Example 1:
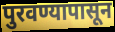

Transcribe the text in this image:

पुरवण्यापासून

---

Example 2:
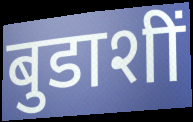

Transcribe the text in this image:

बुडाशीं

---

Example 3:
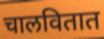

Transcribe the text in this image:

चालवितात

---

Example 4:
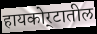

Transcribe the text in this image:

हायकोर्टातील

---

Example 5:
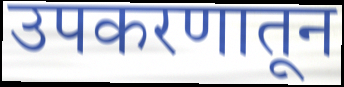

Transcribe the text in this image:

उपकरणातून